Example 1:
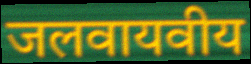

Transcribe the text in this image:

जलवायवीय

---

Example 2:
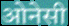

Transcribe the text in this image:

ओनेसी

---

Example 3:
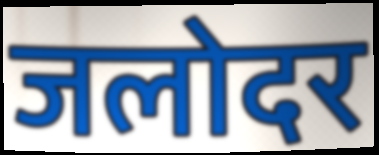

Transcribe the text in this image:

जलोदर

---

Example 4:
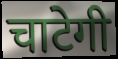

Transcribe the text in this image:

चाटेगी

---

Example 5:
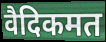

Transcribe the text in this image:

वैदिकमत